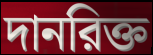
দানরিক্ত